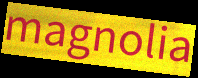
magnolia